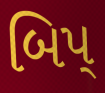
બિપ્